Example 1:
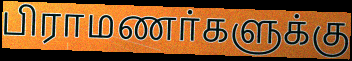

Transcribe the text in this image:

பிராமணர்களுக்கு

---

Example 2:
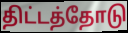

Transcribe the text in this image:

திட்டத்தோடு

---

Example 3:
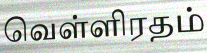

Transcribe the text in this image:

வெள்ளிரதம்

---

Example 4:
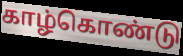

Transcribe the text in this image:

காழ்கொண்டு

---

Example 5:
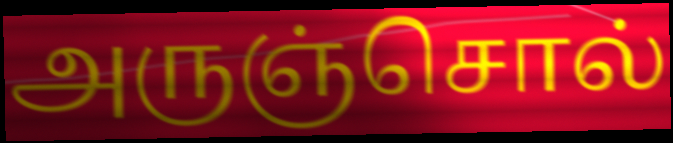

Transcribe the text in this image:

அருஞ்சொல்